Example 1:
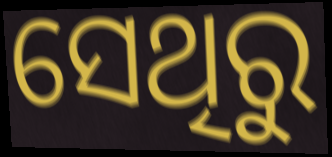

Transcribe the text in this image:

ସେଥିରୁ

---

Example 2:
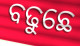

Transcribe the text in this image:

ବଢୁଛେ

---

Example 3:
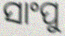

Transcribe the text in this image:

ସାଂପୁ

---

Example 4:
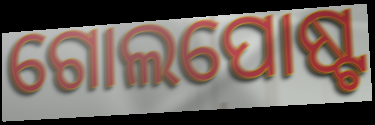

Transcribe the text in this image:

ଗୋଲପୋଷ୍ଟ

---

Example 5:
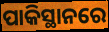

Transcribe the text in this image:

ପାକିସ୍ଥାନରେ